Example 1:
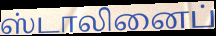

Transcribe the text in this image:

ஸ்டாலினைப்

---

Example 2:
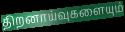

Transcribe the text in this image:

திறனாய்வுகளையும்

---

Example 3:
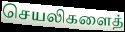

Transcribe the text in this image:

செயலிகளைத்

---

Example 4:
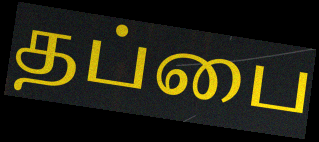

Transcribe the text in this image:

தப்பை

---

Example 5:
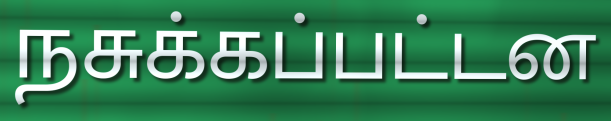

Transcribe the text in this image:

நசுக்கப்பட்டன